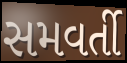
સમવર્તી